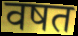
वषत